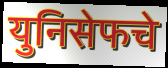
युनिसेफचे